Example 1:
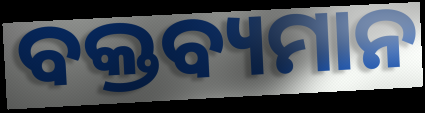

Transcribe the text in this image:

ବକ୍ତବ୍ୟମାନ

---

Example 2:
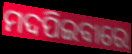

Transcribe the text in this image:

ମଦପିଇବାରେ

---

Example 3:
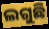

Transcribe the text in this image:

ଲଗୁଛି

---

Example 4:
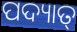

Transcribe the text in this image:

ପଦ୍ୟାତ୍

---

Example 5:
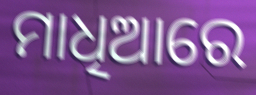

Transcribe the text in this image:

ମାଧିଆରେ